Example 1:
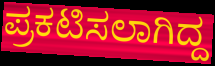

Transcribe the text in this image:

ಪ್ರಕಟಿಸಲಾಗಿದ್ದ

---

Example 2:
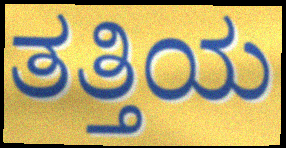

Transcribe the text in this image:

ತತ್ತಿಯ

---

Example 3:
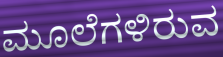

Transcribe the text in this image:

ಮೂಲೆಗಳಿರುವ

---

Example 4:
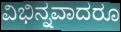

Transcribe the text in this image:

ವಿಭಿನ್ನವಾದರೂ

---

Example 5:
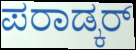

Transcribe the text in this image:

ಪರಾಡ್ಕರ್